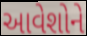
આવેશોને